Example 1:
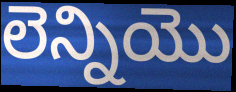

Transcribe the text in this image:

లెన్నియొ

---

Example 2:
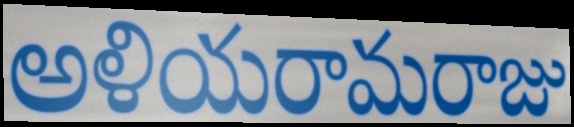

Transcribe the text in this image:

అళియరామరాజు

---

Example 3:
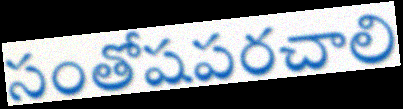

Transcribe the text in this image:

సంతోషపరచాలి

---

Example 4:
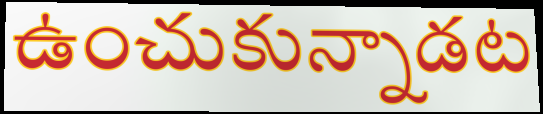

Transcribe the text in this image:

ఉంచుకున్నాడట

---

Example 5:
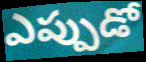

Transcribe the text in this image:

ఎప్పుడో